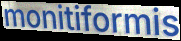
monitiformis